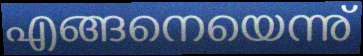
എങ്ങനെയെന്നു്